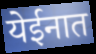
येईनात